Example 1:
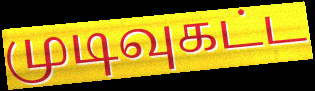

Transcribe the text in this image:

முடிவுகட்ட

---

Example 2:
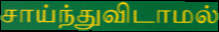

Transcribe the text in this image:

சாய்ந்துவிடாமல்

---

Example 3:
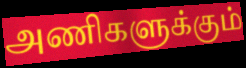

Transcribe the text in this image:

அணிகளுக்கும்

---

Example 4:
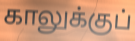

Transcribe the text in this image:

காலுக்குப்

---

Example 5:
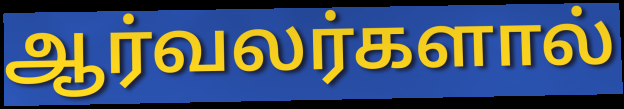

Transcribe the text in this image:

ஆர்வலர்களால்